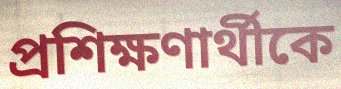
প্রশিক্ষণার্থীকে